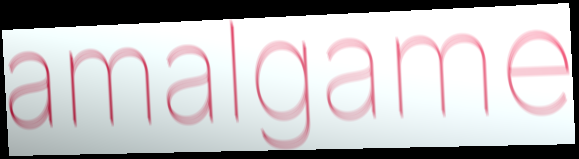
amalgame